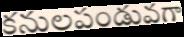
కనులపండువగా